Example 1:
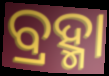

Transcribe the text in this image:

ବ୍ରହ୍ମା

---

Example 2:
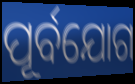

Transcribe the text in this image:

ପୂର୍ବଯୋଗ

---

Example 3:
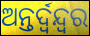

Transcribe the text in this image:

ଅନ୍ତର୍ଦ୍ୱନ୍ଦ୍ୱର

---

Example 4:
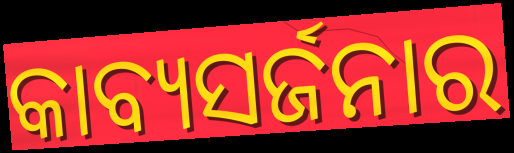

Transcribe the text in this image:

କାବ୍ୟସର୍ଜନାର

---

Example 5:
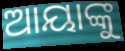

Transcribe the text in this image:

ଆୟାଙ୍କୁ